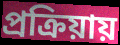
প্রক্রিয়ায়